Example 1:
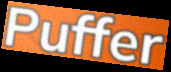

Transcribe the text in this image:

Puffer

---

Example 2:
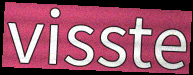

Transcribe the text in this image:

visste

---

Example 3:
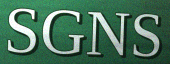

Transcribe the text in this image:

SGNS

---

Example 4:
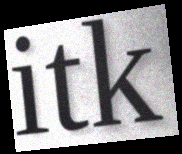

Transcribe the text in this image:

itk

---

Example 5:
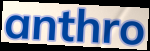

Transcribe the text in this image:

anthro